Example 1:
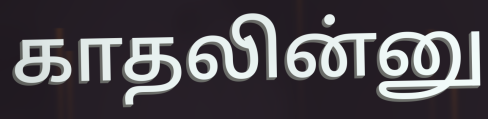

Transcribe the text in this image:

காதலின்னு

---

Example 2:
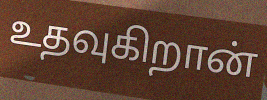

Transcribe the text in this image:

உதவுகிறான்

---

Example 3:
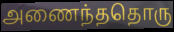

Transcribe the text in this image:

அணைந்ததொரு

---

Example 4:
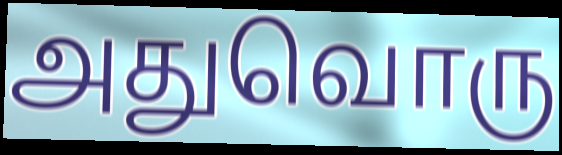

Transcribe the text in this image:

அதுவொரு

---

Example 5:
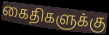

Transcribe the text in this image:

கைதிகளுக்கு